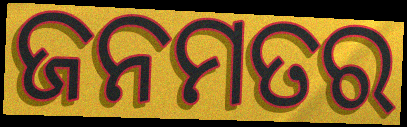
ଜନମତର